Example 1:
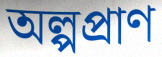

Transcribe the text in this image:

অল্পপ্রাণ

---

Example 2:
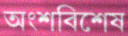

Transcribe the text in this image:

অংশবিশেষ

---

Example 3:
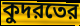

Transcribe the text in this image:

কুদরতের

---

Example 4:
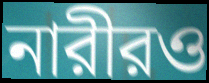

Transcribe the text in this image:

নারীরও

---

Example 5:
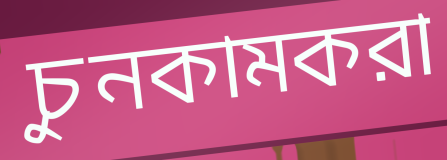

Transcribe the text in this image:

চুনকামকরা